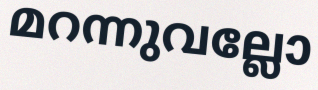
മറന്നുവല്ലോ